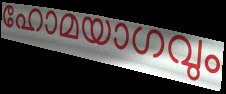
ഹോമയാഗവും